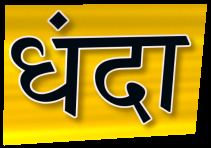
धंदा